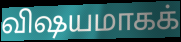
விஷயமாகக்